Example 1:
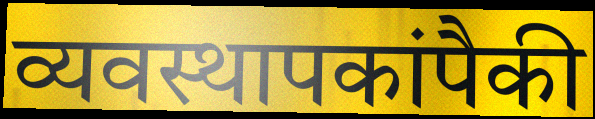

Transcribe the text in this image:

व्यवस्थापकांपैकी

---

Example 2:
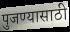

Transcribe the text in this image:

पुजण्यासाठी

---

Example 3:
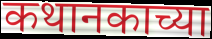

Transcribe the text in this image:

कथानकाच्या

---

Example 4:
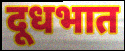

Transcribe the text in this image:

दूधभात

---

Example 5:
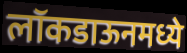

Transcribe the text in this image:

लॉकडाऊनमध्ये